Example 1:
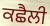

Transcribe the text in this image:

ਕਛੈਲੀ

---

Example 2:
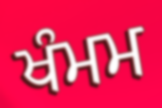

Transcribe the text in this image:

ਖੰਮਮ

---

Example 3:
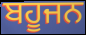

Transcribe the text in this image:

ਬਹੂਜਨ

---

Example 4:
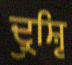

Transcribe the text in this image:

ਦ੍ਰੁਸ਼੍ਟਿ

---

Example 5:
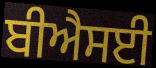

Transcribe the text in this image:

ਬੀਐਸਈ